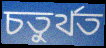
চতুর্থত